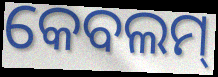
କେବଲମ୍